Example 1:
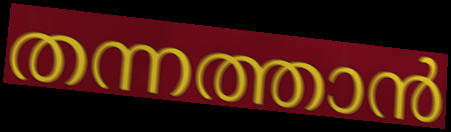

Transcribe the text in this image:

തന്നത്താൻ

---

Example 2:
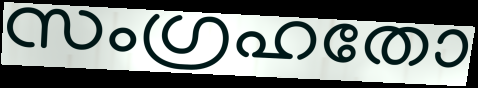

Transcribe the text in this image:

സംഗ്രഹതോ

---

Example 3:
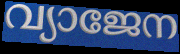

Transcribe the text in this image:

വ്യാജേന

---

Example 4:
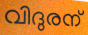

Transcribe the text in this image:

വിദുരന്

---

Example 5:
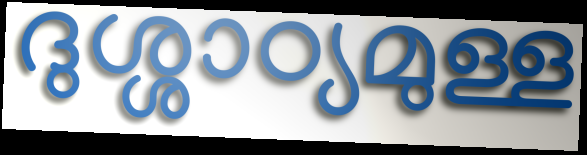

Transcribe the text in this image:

ദുശ്ശാഠ്യമുള്ള